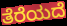
ತೆರೆಯದೆ